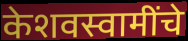
केशवस्वामींचे